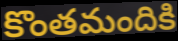
కొంతమందికి